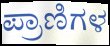
ಪ್ರಾಣಿಗಳ